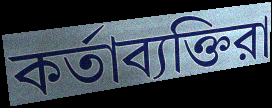
কর্তাব্যক্তিরা